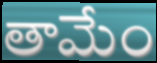
తామేం